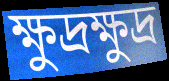
ক্ষুদ্রক্ষুদ্র